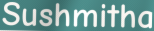
Sushmitha